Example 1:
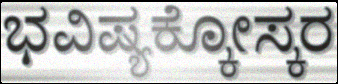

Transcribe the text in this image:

ಭವಿಷ್ಯಕ್ಕೋಸ್ಕರ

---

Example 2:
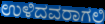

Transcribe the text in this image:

ಉಳಿದವರಾಗಲಿ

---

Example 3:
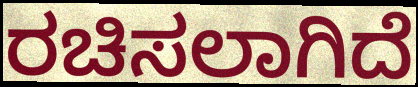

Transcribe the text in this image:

ರಚಿಸಲಾಗಿದೆ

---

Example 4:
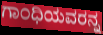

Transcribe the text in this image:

ಗಾಂಧಿಯವರನ್ನ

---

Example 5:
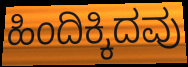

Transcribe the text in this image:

ಹಿಂದಿಕ್ಕಿದವು